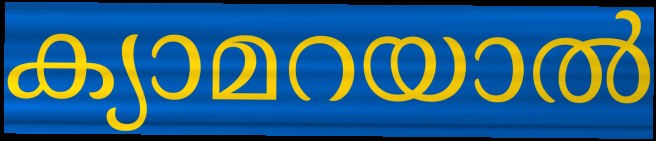
ക്യാമറയാൽ